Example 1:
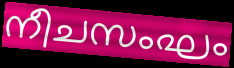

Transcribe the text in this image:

നീചസംഘം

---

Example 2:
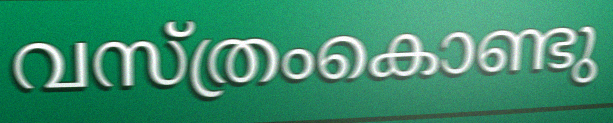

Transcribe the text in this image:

വസ്ത്രംകൊണ്ടു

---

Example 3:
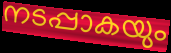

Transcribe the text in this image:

നടപ്പാകയും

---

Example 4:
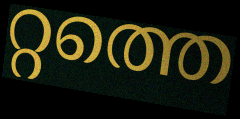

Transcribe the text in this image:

റ്റത്തെ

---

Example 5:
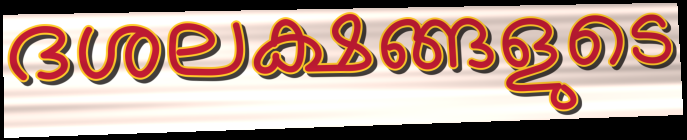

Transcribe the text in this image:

ദശലക്ഷങ്ങളുടെ